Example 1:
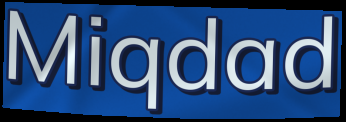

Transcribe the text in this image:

Miqdad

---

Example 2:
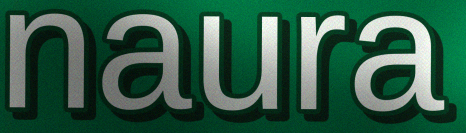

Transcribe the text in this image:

naura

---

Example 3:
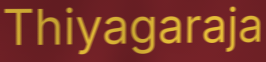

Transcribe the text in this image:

Thiyagaraja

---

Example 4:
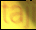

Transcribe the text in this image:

taji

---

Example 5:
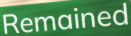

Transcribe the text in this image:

Remained